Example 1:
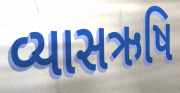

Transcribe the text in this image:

વ્યાસઋષિ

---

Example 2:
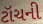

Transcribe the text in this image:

ટૉચની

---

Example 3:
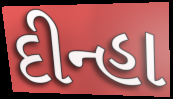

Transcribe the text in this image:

દીન્હા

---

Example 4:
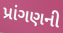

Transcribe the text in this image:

પ્રાંગણની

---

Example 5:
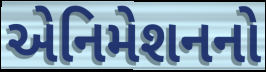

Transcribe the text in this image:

એનિમેશનનો